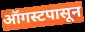
ऑगस्टपासून